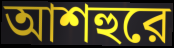
আশহুরে